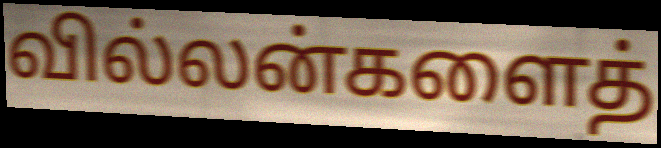
வில்லன்களைத்